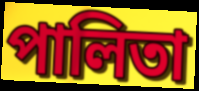
পালিতা